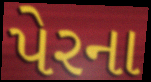
પેરના